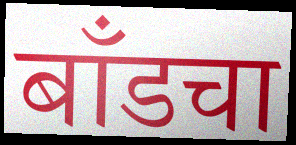
बाँडचा